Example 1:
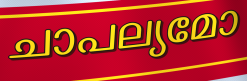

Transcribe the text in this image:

ചാപല്യമോ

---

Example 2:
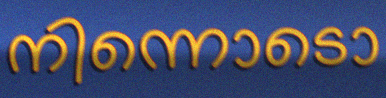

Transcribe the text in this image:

നിന്നൊടൊ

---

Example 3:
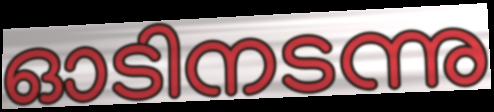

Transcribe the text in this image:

ഓടിനടന്നു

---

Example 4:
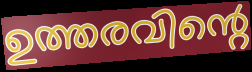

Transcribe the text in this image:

ഉത്തരവിന്റെ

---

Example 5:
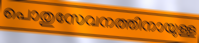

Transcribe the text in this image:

പൊതുസേവനത്തിനായുള്ള